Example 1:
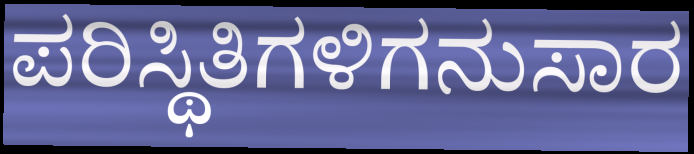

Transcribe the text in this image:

ಪರಿಸ್ಥಿತಿಗಳಿಗನುಸಾರ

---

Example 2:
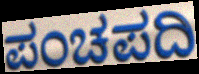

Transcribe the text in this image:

ಪಂಚಪದಿ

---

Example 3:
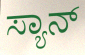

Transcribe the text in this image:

ಸ್ಯಾನ್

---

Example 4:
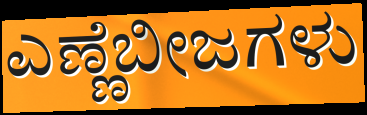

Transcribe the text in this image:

ಎಣ್ಣೆಬೀಜಗಳು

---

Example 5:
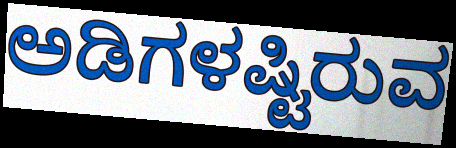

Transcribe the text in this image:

ಅಡಿಗಳಷ್ಟಿರುವ